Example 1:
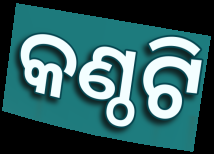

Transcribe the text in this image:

କଣ୍ଠଟି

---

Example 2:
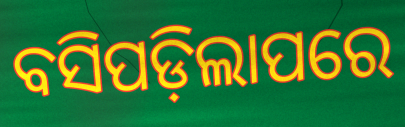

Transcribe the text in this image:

ବସିପଡ଼ିଲାପରେ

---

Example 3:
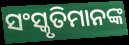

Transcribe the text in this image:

ସଂସ୍କୃତିମାନଙ୍କ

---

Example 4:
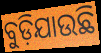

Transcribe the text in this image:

ବୁଡ଼ିଯାଉଛି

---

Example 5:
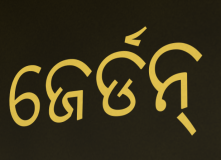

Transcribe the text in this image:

ଜେର୍ଡନ୍